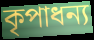
কৃপাধন্য